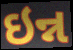
ઇન્ન